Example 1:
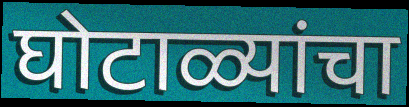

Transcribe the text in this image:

घोटाळ्यांचा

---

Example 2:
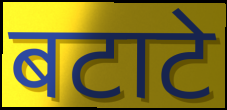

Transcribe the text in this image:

बटाटे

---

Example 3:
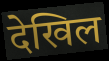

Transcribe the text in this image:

देखिल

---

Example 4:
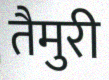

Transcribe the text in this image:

तैमुरी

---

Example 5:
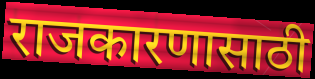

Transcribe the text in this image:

राजकारणासाठी